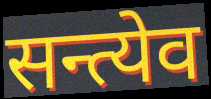
सन्त्येव